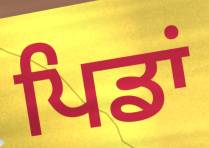
ਪਿਡਾਂ